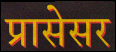
प्रासेसर